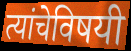
त्यांचेविषयी